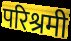
परिश्रमी